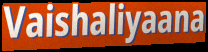
Vaishaliyaana